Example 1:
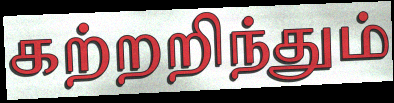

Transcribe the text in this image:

கற்றறிந்தும்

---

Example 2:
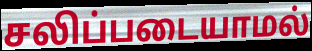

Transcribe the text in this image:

சலிப்படையாமல்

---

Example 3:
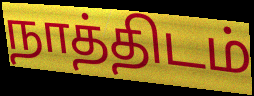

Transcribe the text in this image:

நாத்திடம்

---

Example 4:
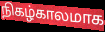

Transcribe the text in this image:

நிகழ்காலமாக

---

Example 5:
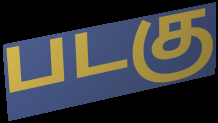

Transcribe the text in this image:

படகு